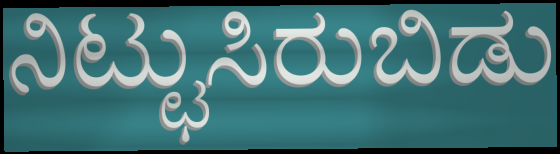
ನಿಟ್ಟುಸಿರುಬಿಡು